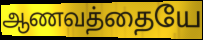
ஆணவத்தையே